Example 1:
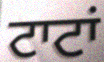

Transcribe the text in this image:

ਟਾਟਾਂ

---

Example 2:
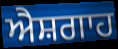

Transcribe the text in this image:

ਐਸ਼ਗਾਹ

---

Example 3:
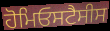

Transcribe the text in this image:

ਹੋਮਿਓਸਟੈਸੀਸ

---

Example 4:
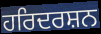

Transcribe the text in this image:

ਹਰਿਦਰਸ਼ਨ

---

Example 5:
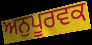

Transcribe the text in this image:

ਅਨੁਪੂਰਵਕ